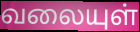
வலையுள்